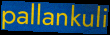
pallankuli